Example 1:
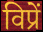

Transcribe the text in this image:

विप्रें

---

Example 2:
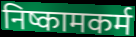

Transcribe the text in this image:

निष्कामकर्म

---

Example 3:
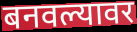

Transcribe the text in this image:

बनवल्यावर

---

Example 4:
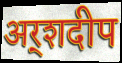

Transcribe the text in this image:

अर्शदीप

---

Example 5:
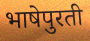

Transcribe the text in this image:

भाषेपुरती